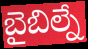
బైబిల్నే